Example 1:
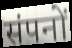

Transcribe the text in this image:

संपनों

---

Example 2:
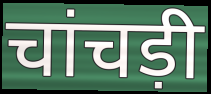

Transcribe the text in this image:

चांचड़ी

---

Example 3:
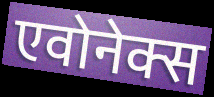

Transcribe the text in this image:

एवोनेक्स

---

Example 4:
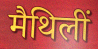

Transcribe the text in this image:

मैथिलीं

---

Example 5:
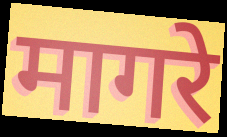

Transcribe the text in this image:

मागरे